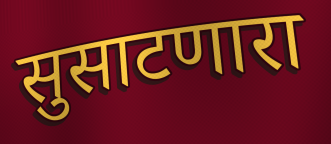
सुसाटणारा